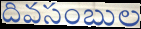
దివసంబుల